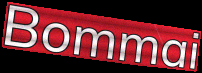
Bommai